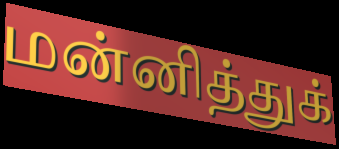
மன்னித்துக்